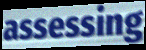
assessing